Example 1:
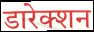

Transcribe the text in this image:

डारेक्शन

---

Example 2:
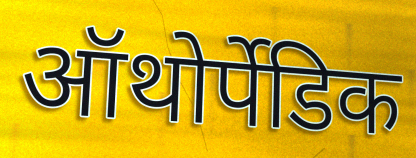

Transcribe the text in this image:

ऑथोर्पेडिक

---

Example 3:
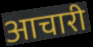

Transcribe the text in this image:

आचारी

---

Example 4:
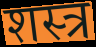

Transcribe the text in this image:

शस्त्र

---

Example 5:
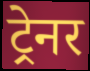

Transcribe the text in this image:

ट्रेनर